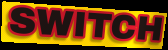
SWITCH